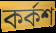
কৰ্কশ